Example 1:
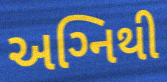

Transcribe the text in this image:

અગ્‍નિથી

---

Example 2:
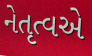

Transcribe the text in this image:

નેતૃત્વએ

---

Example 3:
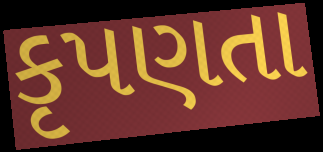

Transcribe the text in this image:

કૃપણતા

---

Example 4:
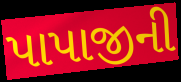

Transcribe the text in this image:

પાપાજીની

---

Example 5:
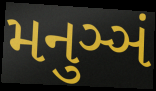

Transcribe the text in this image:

મનુઞ્ઞં